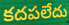
కదపలేదు